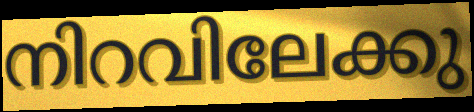
നിറവിലേക്കു